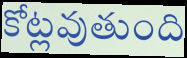
కోట్లవుతుంది